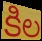
కిల